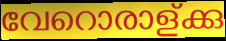
വേറൊരാള്ക്കു